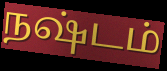
நஷ்டம்